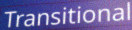
Transitional